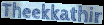
Theekkathir